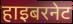
हाइबरनेट